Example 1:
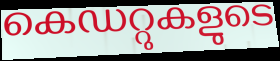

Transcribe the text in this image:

കെഡറ്റുകളുടെ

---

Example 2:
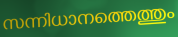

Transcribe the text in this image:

സന്നിധാനത്തെത്തും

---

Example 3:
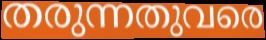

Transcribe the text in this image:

തരുന്നതുവരെ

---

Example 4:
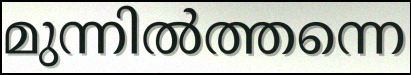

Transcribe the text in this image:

മുന്നിൽത്തന്നെ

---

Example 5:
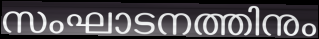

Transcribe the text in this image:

സംഘാടനത്തിനും